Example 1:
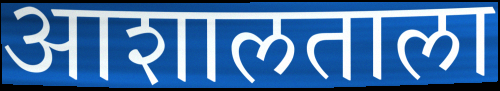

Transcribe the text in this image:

आशालताला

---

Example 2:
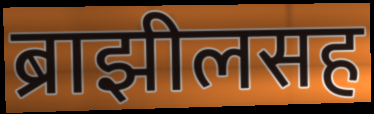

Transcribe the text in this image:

ब्राझीलसह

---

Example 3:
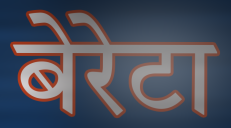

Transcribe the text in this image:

बेरेटा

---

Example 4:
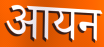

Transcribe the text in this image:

आयन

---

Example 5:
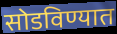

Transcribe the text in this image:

सोडविण्यात